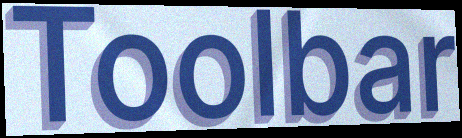
Toolbar